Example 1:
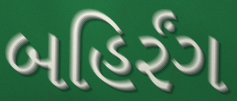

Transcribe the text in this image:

બહિર્રંગ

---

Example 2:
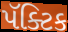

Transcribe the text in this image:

પૅક્ટિક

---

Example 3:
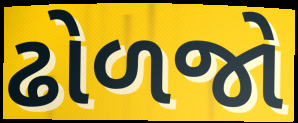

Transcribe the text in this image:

ઢોળજો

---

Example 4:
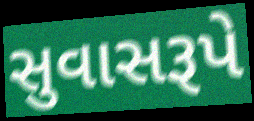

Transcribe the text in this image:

સુવાસરૂપે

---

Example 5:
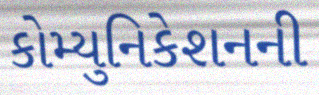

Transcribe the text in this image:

કોમ્યુનિકેશનની